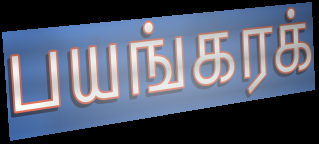
பயங்கரக்